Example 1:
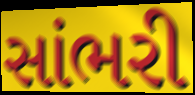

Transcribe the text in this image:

સાંભરી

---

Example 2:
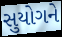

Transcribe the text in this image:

સુયોગને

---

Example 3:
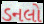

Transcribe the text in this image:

ડનલો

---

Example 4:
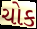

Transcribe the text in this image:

ચોક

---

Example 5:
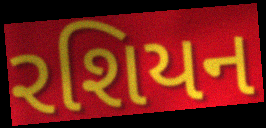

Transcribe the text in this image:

રશિયન